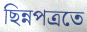
ছিন্নপত্রতে